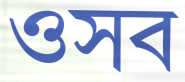
ওসব